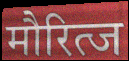
मौरित्ज